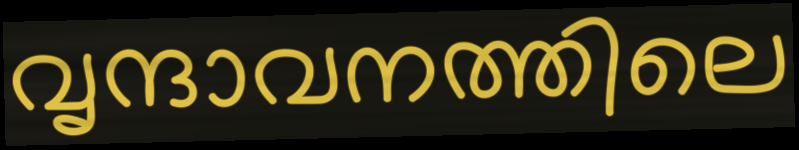
വൃന്ദാവനത്തിലെ